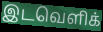
இடவெளிக்